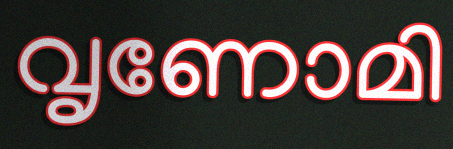
വൃണോമി